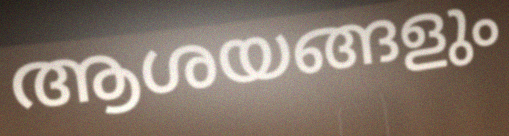
ആശയങ്ങളും